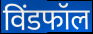
विंडफॉल